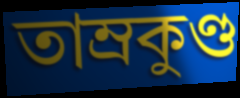
তাম্রকুণ্ড